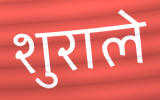
शुराले